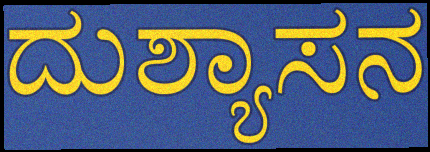
ದುಶ್ಯಾಸನ